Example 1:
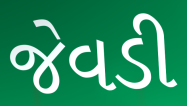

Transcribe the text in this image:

જેવડી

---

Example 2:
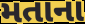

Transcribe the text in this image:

મતાના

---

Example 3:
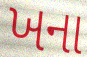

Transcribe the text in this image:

ખના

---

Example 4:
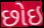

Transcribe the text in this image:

છોઇ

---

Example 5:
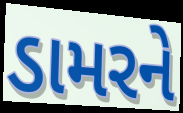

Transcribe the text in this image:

ડામરને